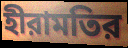
হীরামতির